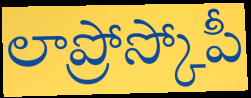
లాప్రోస్కోపీ